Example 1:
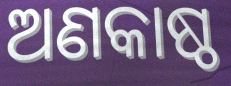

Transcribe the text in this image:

ଅଣକାଷ୍ଠ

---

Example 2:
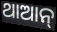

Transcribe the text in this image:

ଥାଆନ୍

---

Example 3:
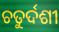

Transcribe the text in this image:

ଚତୁର୍ଦଶୀ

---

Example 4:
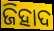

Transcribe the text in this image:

ଜିହାଦ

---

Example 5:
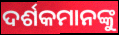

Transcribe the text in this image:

ଦର୍ଶକମାନଙ୍କୁ